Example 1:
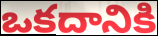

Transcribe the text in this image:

ఒకదానికి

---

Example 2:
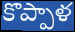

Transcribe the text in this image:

కొప్పాళ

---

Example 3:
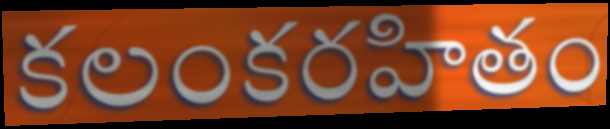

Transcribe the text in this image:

కలంకరహితం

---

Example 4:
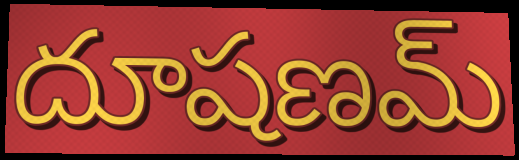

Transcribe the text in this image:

దూషణమ్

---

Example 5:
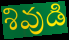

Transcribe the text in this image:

శివుడి